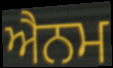
ਐਨਮ